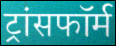
ट्रांसफॉर्म